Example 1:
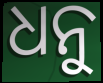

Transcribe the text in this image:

ଧନୁ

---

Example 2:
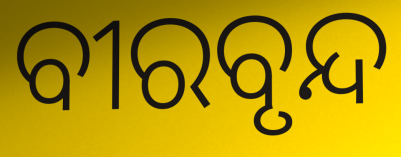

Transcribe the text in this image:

ବୀରବୃନ୍ଦ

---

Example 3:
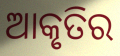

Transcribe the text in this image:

ଆକୃତିର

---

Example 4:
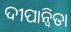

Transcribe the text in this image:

ଦୀପାନ୍ୱିତା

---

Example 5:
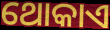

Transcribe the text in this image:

ଥୋକାଏ